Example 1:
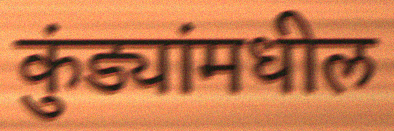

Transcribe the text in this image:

कुंड्यांमधील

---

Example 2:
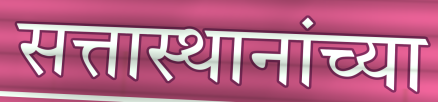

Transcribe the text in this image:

सत्तास्थानांच्या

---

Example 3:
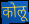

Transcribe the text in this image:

कोलू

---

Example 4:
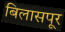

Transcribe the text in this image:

बिलासपूर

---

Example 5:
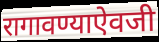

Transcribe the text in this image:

रागावण्याऐवजी